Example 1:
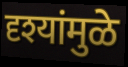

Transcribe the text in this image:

दृश्यांमुळे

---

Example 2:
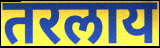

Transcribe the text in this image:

तरलाय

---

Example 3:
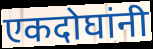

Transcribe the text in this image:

एकदोघांनी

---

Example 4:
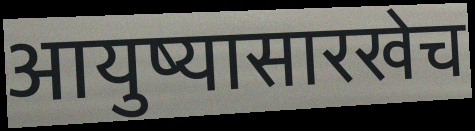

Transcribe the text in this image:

आयुष्यासारखेच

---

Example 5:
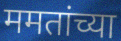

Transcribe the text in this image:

ममतांच्या